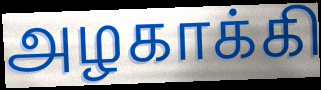
அழகாக்கி